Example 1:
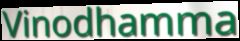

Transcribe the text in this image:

Vinodhamma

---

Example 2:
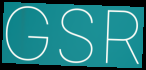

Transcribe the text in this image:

GSR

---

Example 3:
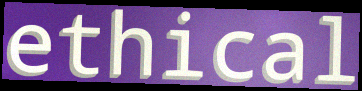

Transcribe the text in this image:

ethical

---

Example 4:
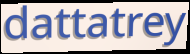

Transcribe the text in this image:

dattatrey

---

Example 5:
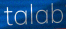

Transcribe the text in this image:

talab